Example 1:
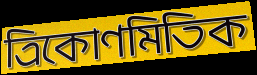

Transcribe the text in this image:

ত্ৰিকোণমিতিক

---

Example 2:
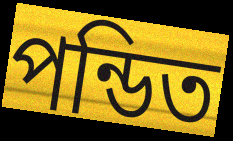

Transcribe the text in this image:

পন্ডিত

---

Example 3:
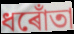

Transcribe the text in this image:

ধৰোঁতা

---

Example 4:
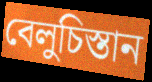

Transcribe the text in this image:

বেলুচিস্তান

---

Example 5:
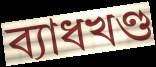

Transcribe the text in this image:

ব্যাধখণ্ড